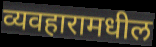
व्यवहारामधील